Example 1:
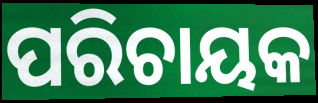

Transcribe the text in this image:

ପରିଚାୟକ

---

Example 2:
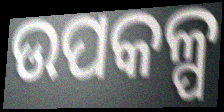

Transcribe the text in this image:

ଉପକଳ୍ପ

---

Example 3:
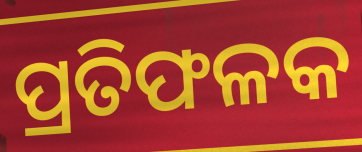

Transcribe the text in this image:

ପ୍ରତିଫଳକ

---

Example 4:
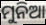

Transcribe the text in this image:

ମୁନିଆ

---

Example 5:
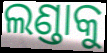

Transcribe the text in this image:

ଲଣ୍ଡାକୁ